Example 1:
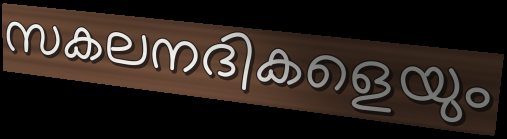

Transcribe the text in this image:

സകലനദികളെയും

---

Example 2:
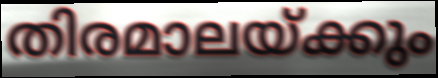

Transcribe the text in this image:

തിരമാലയ്ക്കും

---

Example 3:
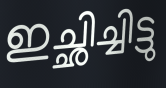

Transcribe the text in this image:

ഇച്ഛിച്ചിട്ടു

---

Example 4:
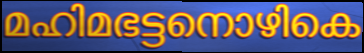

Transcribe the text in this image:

മഹിമഭട്ടനൊഴികെ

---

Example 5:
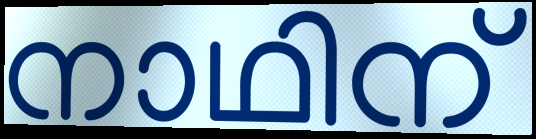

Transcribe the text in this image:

നാഥിന്